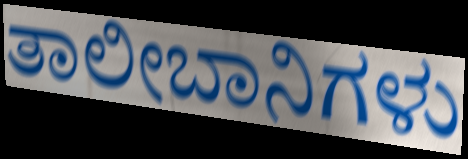
ತಾಲೀಬಾನಿಗಳು